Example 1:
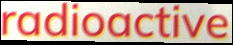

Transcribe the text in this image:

radioactive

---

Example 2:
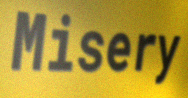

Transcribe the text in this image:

Misery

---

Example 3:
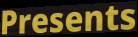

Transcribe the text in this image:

Presents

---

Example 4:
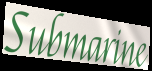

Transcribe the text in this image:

Submarine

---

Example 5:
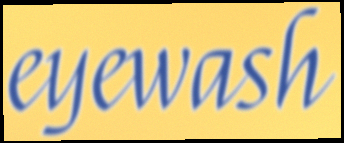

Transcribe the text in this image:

eyewash